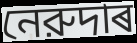
নেৰুদাৰ